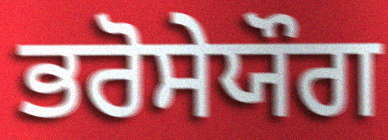
ਭਰੋਸੇਯੌਗ